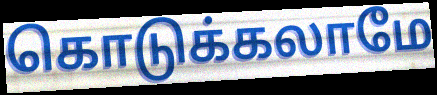
கொடுக்கலாமே